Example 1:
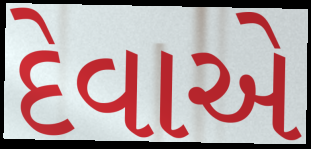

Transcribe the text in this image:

દેવાએ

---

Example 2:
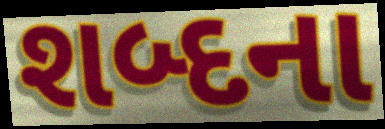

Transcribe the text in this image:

શબ્દના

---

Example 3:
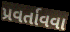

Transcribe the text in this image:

પ્રવર્તાવવા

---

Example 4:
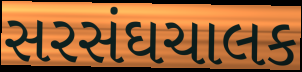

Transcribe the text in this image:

સરસંઘચાલક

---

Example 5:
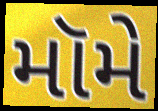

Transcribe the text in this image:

મૉમે